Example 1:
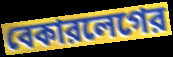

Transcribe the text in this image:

বেকারলেগের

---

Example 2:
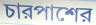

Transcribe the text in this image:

চারপাশের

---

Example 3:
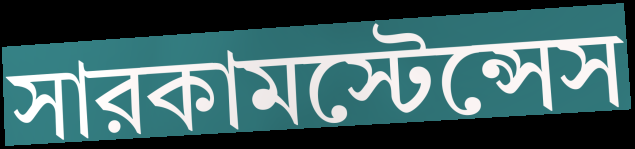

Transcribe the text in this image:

সারকামস্টেন্সেস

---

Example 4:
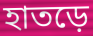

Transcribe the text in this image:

হাতড়ে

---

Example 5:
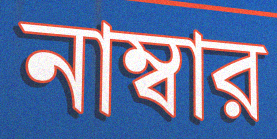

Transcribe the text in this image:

নাম্বার